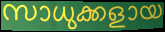
സാധുക്കളായ